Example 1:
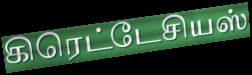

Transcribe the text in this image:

கிரெட்டேசியஸ்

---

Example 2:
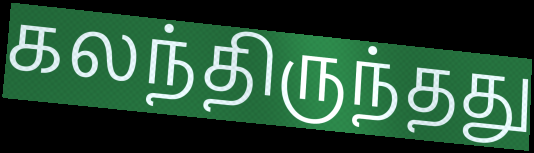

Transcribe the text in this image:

கலந்திருந்தது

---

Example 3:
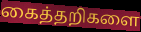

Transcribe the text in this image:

கைத்தறிகளை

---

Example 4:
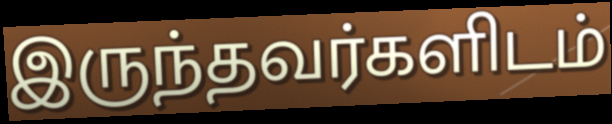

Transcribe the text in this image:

இருந்தவர்களிடம்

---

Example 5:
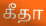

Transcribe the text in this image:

கீதா